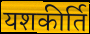
यशकीर्ति